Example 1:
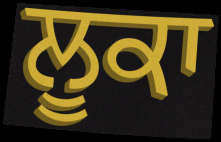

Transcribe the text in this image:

ਲੂਕਾ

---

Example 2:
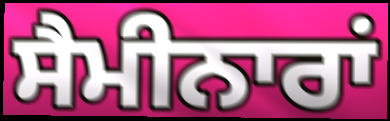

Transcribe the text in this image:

ਸੈਮੀਨਾਰਾਂ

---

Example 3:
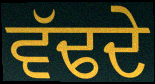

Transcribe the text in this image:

ਵੱਢਦੇ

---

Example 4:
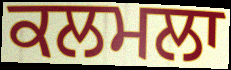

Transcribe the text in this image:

ਕਲਮਲਾ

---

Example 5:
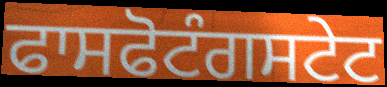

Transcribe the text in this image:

ਫਾਸਫੋਟੰਗਸਟੇਟ